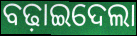
ବଢ଼ାଇଦେଲା